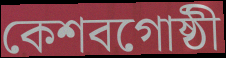
কেশবগোষ্ঠী